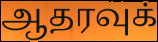
ஆதரவுக்